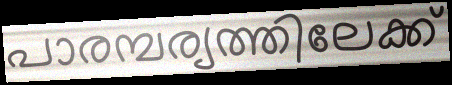
പാരമ്പര്യത്തിലേക്ക്